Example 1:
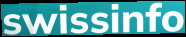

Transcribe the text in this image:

swissinfo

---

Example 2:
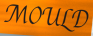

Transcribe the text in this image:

MOULD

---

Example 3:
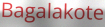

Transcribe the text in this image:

Bagalakote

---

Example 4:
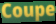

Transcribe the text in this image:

Coupe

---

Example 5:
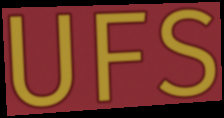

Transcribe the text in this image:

UFS